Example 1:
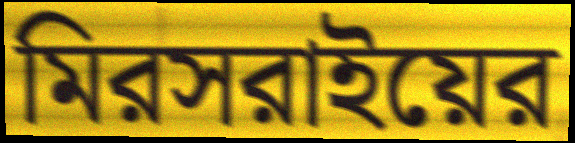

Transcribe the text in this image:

মিরসরাইয়ের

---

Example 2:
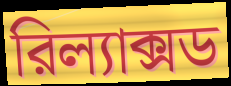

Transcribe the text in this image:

রিল্যাক্সড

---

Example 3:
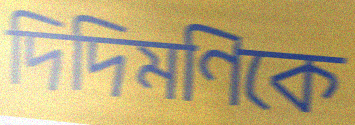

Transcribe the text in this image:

দিদিমণিকে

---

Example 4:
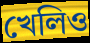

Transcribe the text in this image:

খেলিও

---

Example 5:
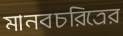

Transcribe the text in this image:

মানবচরিত্রের